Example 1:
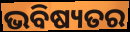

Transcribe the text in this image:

ଭବିଷ୍ୟତର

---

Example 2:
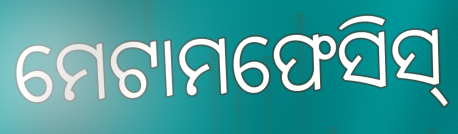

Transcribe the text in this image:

ମେଟାମଫେସିସ୍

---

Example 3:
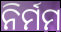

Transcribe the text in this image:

ନିର୍ମମ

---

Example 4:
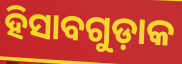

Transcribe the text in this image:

ହିସାବଗୁଡ଼ାକ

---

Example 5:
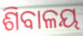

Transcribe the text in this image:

ଶିବାଳୟ